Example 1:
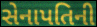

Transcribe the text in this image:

સેનાપતિની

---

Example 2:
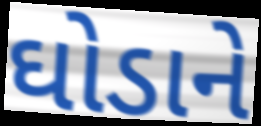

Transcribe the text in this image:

ઘોડાને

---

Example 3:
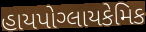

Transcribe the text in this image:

હાયપોગ્લાયકેમિક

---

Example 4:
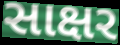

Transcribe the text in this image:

સાક્ષર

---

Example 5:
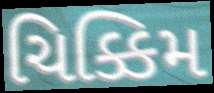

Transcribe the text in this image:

ચિક્કિમ